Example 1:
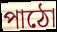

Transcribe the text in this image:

পাঠো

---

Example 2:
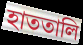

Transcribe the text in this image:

হাততালি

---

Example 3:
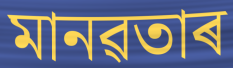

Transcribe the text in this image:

মানৱতাৰ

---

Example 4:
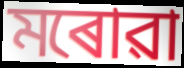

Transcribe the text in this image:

মৰোৱা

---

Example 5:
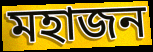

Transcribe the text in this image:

মহাজন